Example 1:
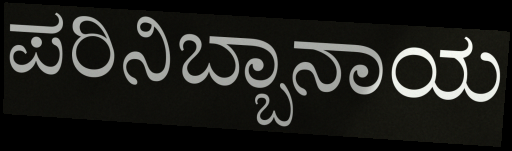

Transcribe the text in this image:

ಪರಿನಿಬ್ಬಾನಾಯ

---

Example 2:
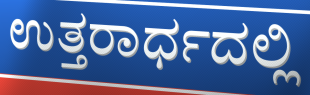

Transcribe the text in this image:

ಉತ್ತರಾರ್ಧದಲ್ಲಿ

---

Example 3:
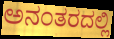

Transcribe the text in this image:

ಅನಂತರದಲ್ಲಿ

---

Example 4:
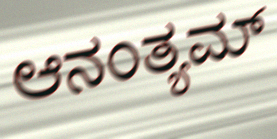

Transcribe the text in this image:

ಆನಂತ್ಯಮ್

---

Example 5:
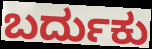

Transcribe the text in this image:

ಬರ್ದುಕು